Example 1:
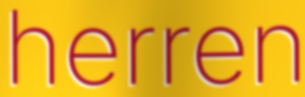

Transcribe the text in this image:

herren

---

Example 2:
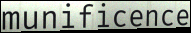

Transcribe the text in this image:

munificence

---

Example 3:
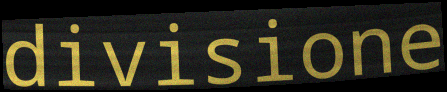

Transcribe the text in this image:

divisione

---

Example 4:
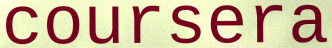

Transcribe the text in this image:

coursera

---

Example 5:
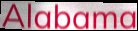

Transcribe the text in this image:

Alabama